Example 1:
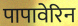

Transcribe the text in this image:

पापावेरिन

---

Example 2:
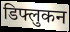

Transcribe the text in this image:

डिफ्लुकन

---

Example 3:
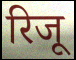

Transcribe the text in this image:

रिजू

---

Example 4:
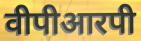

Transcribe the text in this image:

वीपीआरपी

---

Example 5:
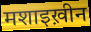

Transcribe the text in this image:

मशाइख़ीन